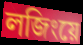
লজিংয়ে